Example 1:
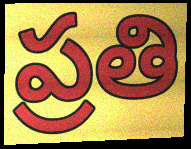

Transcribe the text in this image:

ప్రతి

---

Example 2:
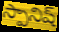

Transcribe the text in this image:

స్పానిష్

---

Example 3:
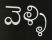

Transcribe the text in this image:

వెళ్ళి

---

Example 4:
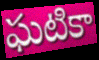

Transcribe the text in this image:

ఘటికా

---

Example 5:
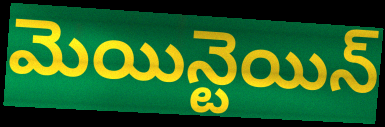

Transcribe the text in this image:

మెయిన్టెయిన్